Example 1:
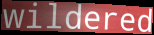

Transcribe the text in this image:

wildered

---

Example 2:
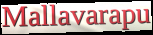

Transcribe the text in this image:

Mallavarapu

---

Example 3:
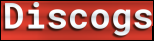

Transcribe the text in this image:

Discogs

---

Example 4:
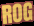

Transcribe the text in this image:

ROG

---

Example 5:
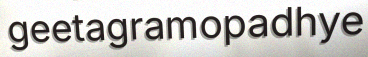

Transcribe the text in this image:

geetagramopadhye